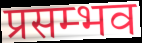
प्रसम्भव